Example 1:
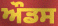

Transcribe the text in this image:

ਔਡਸ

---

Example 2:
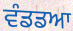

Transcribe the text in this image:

ਵੰਡਡਆ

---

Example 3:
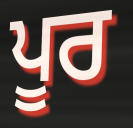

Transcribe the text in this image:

ਪੂਰ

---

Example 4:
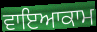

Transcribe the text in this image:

ਵਾਇਆਕਾਮ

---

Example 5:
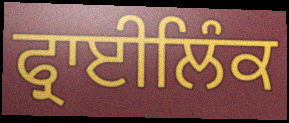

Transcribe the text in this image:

ਫ੍ਰਾਈਲਿੰਕ